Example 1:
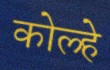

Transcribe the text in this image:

कोल्हे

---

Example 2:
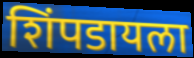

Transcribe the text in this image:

शिंपडायला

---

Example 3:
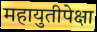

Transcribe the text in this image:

महायुतीपेक्षा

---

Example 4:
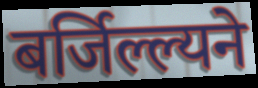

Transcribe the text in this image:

बर्जिल्ल्यने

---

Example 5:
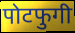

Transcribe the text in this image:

पोटफुगी